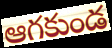
ఆగకుండ